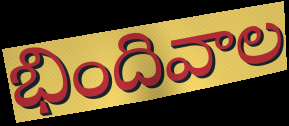
భిందివాల